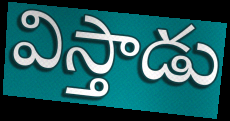
విస్తాడు